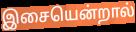
இசையென்றால்